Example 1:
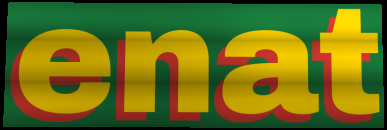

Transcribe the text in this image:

enat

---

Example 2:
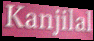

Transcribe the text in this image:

Kanjilal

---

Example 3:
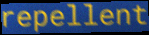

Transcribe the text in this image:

repellent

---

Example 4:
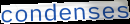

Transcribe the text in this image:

condenses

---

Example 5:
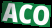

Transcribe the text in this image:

ACO